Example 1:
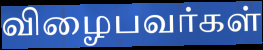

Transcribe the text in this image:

விழைபவர்கள்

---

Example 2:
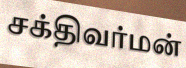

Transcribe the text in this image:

சக்திவர்மன்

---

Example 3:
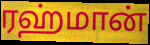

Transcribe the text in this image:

ரஹ்மான்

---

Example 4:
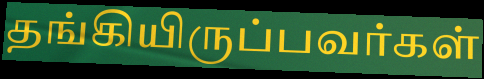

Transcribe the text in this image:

தங்கியிருப்பவர்கள்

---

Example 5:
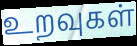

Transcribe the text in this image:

உறவுகள்